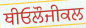
ਥੀਓਲੌਜੀਕਲ